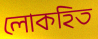
লোকহিত